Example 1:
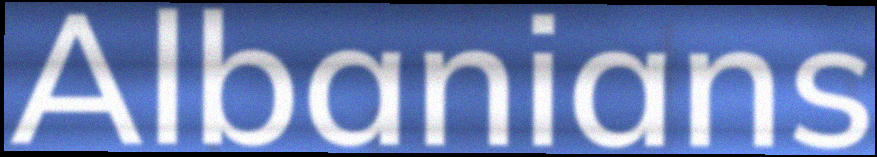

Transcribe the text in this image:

Albanians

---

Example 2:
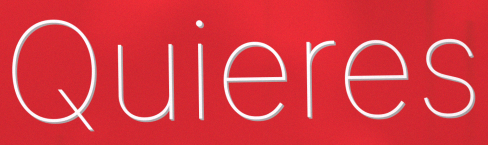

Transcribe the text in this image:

Quieres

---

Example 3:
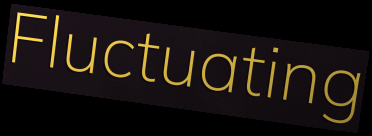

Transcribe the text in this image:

Fluctuating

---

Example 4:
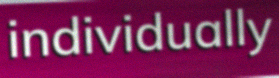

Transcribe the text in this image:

individually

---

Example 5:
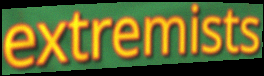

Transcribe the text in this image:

extremists